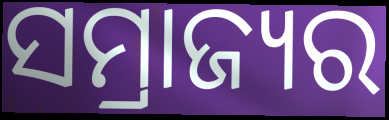
ସମ୍ରାଜ୍ୟର